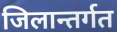
जिलान्तर्गत